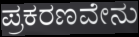
ಪ್ರಕರಣವೇನು